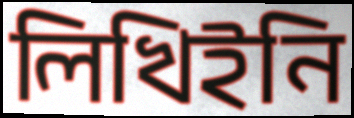
লিখিইনি